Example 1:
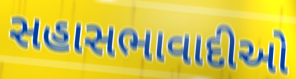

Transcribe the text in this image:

સહાસભાવાદીઓ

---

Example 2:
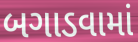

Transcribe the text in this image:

બગાડવામાં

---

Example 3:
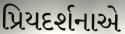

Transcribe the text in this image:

પ્રિયદર્શનાએ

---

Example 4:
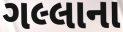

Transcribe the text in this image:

ગલ્લાના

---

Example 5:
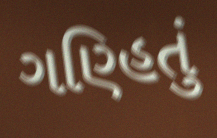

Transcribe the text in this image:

ગણ્હિતું